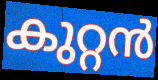
കുറ്റൻ